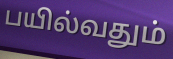
பயில்வதும்